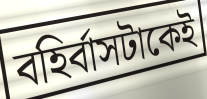
বহির্বাসটাকেই